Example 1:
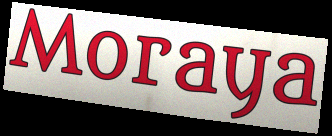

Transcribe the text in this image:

Moraya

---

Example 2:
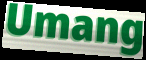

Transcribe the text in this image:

Umang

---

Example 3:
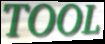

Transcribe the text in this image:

TOOL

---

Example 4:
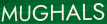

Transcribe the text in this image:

MUGHALS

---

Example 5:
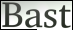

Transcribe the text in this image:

Bast